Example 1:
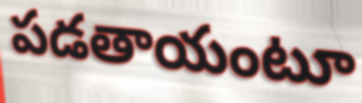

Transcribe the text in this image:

పడతాయంటూ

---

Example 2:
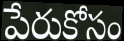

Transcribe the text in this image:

పేరుకోసం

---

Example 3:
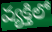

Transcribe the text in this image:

వ్యక్తిలో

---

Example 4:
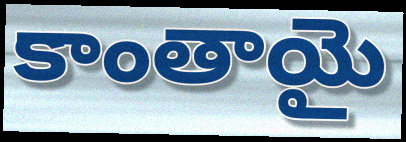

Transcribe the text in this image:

కాంతాయై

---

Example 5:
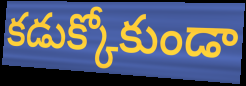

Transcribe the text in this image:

కడుక్కోకుండా